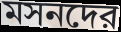
মসনদের